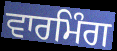
ਵਾਰਮਿੰਗ